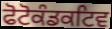
ਫੋਟੋਕੰਡਕਟਿਵ